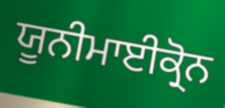
ਯੂਨੀਮਾਈਕ੍ਰੋਨ